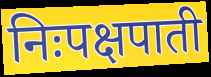
निःपक्षपाती